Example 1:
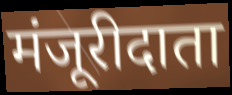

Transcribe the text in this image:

मंजूरीदाता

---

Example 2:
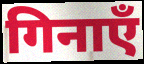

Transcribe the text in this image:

गिनाएँ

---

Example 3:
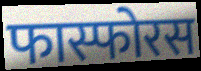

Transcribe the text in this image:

फास्‍फोरस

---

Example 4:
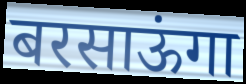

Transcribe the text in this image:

बरसाऊंगा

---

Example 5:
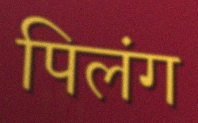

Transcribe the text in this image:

पिलंग